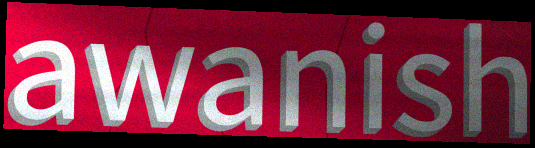
awanish